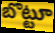
బొట్టూ